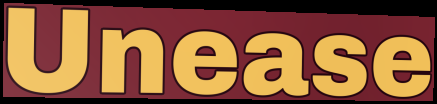
Unease